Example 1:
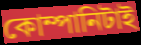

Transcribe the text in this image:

কোম্পানিটাই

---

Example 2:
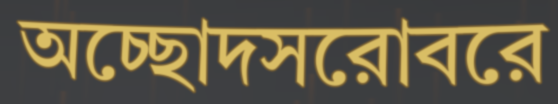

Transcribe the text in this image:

অচ্ছোদসরোবরে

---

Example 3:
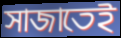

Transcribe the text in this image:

সাজাতেই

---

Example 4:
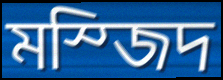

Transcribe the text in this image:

মস্জিদ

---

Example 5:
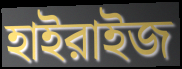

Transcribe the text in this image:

হাইরাইজ